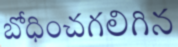
బోధించగలిగిన